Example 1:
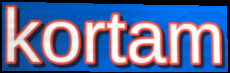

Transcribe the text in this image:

kortam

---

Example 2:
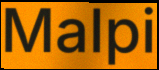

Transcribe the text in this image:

Malpi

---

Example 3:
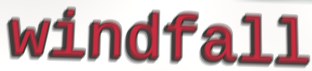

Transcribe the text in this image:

windfall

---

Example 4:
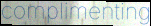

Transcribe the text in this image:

complimenting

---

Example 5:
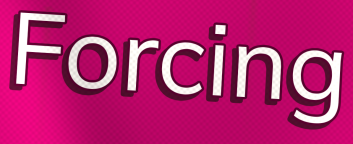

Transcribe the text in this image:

Forcing